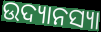
ଉଦ୍ୟାନସ୍ୟା